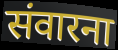
संवारना